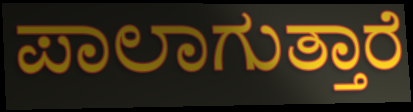
ಪಾಲಾಗುತ್ತಾರೆ